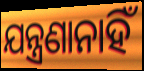
ଯନ୍ତ୍ରଣାନାହିଁ